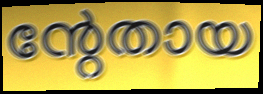
ന്റേതായ